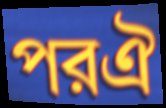
পরঐ